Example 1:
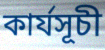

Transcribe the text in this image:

কাৰ্যসূচী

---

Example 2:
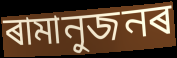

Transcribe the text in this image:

ৰামানুজনৰ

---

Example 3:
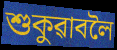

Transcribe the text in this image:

শুকুৱাবলৈ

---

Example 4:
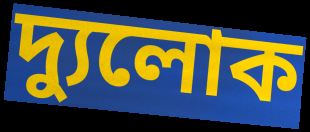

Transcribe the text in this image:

দ্যুলোক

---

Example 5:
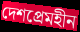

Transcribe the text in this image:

দেশপ্ৰেমহীন